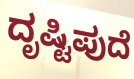
ದೃಷ್ಟಿಪುದೆ